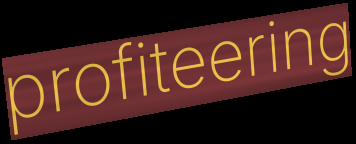
profiteering